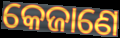
କେଜାଣେ